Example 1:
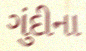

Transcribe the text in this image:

ગુંદીના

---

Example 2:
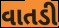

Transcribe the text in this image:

વાતડી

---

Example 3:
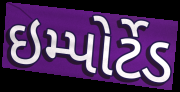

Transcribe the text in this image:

ઇમ્પોર્ટેડ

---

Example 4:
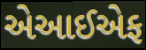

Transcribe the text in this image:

એઆઈએફ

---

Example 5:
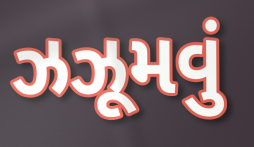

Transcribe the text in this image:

ઝઝૂમવું